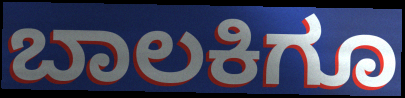
ಬಾಲಕಿಗೂ